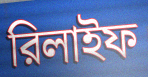
রিলাইফ